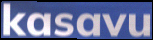
kasavu